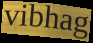
vibhag